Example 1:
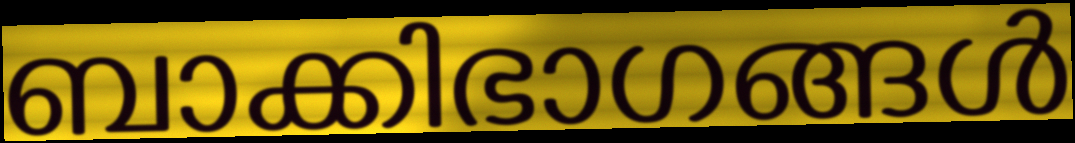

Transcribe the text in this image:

ബാക്കിഭാഗങ്ങൾ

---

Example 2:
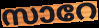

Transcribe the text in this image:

സാറേ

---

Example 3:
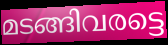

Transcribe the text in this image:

മടങ്ങിവരട്ടെ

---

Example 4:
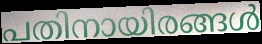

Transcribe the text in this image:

പതിനായിരങ്ങൾ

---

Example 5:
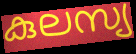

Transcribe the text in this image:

കുലസ്യ